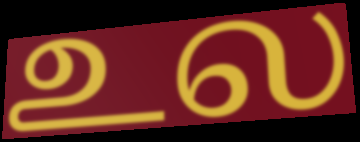
உல